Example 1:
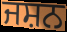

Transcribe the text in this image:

ਜਸ਼ਨ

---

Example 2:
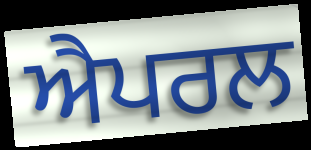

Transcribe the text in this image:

ਐਪਰਲ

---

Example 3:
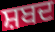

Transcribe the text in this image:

ਸ਼ਬਦ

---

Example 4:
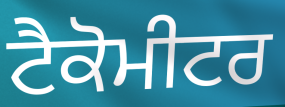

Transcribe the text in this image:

ਟੈਕੋਮੀਟਰ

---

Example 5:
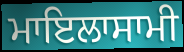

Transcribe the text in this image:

ਮਾਇਲਾਸਾਮੀ